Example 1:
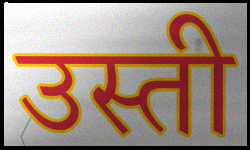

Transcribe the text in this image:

उस्ती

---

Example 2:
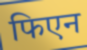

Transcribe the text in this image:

फिएन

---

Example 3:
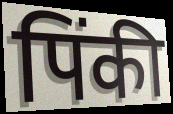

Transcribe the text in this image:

पिंकी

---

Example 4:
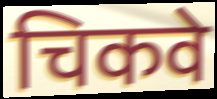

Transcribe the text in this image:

चिकवे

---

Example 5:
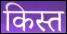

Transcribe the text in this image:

किस्त